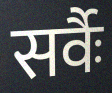
सर्वैः